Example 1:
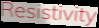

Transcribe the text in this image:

Resistivity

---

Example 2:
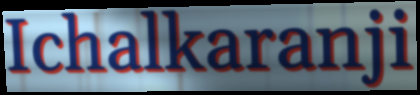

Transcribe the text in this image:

Ichalkaranji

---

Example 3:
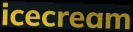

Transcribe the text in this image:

icecream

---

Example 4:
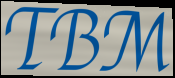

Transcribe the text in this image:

TBM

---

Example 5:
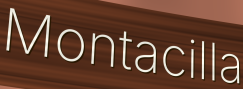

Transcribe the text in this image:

Montacilla